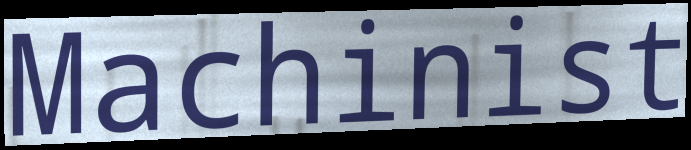
Machinist